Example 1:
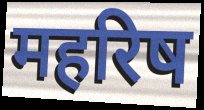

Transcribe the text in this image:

महरिष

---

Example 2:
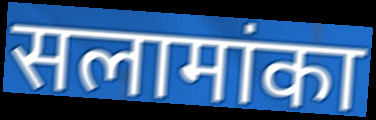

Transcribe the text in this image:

सलामांका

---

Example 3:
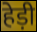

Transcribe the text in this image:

हेड़ी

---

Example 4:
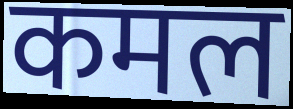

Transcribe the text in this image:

कमल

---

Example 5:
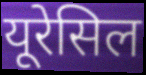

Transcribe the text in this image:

यूरेसिल